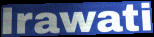
Irawati